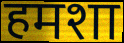
हमशा